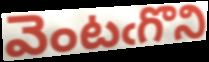
వెంటఁగొని